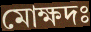
মোক্ষদঃ